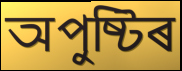
অপুষ্টিৰ